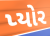
પ્યોર